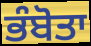
ਭੰਬੋਤਾ